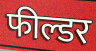
फील्डर